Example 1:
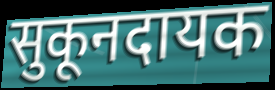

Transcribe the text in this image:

सुकूनदायक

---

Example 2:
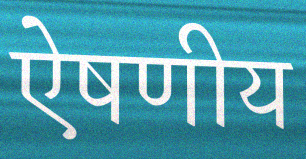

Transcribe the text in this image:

ऐषणीय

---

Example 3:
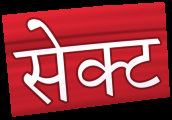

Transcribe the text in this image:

सेक्ट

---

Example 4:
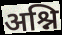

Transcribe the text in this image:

अश्नि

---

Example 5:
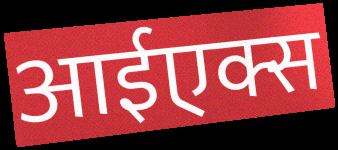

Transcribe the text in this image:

आईएक्स